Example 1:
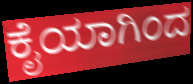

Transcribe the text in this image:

ಕೈಯಾಗಿಂದ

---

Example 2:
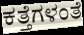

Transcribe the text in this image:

ಕತ್ತೆಗಳಂತೆ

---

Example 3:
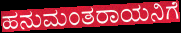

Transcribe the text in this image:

ಹನುಮಂತರಾಯನಿಗೆ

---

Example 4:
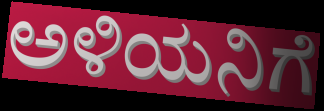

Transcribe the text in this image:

ಅಳಿಯನಿಗೆ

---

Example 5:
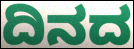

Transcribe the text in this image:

ದಿನದ